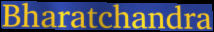
Bharatchandra